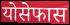
योसेफास